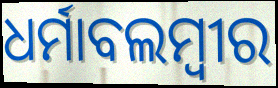
ଧର୍ମାବଲମ୍ବୀର